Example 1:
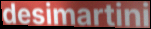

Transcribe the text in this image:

desimartini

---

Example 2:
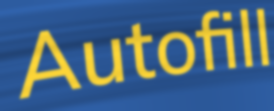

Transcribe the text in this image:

Autofill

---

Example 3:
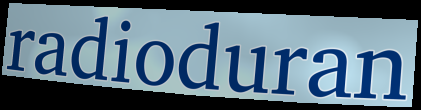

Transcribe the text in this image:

radioduran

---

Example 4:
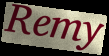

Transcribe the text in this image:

Remy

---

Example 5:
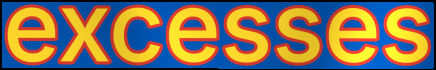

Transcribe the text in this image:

excesses